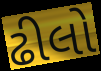
ઢીલો